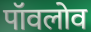
पॉवलोव